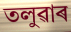
তলুৱাৰ